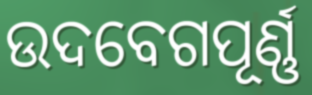
ଉଦବେଗପୂର୍ଣ୍ଣ